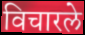
विचारले